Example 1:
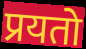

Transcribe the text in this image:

प्रयतो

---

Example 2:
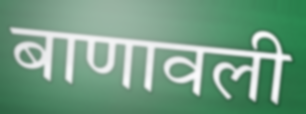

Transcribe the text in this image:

बाणावली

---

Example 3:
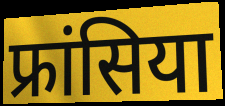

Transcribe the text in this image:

फ्रांसिया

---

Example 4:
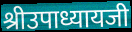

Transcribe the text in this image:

श्रीउपाध्यायजी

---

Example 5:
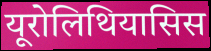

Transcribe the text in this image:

यूरोलिथियासिस